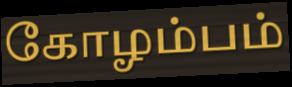
கோழம்பம்